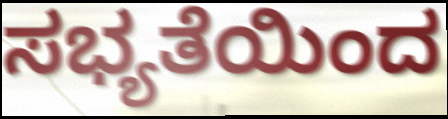
ಸಭ್ಯತೆಯಿಂದ